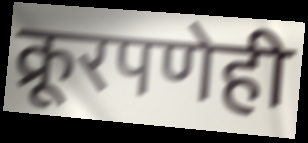
क्रूरपणेही